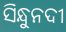
ସିନ୍ଧୁନଦୀ